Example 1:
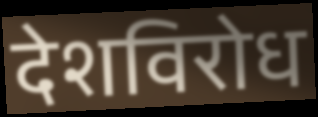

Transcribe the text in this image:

देशविरोध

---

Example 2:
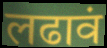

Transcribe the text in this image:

लढावं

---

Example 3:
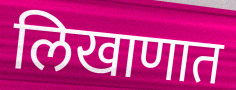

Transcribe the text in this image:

लिखाणात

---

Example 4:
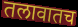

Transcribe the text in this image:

तलावातच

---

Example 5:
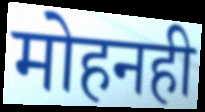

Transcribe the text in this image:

मोहनही